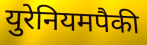
युरेनियमपैकी